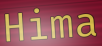
Hima